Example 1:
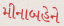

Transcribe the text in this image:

મીનાબહેને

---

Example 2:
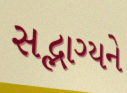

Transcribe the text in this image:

સદ્ભાગ્યને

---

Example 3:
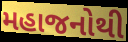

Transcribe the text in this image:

મહાજનોથી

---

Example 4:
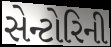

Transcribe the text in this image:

સેન્ટોરિની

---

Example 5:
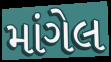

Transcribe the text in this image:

માંગેલ